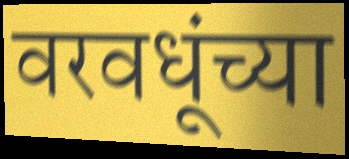
वरवधूंच्या